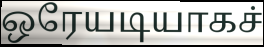
ஒரேயடியாகச்